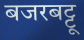
बजरबट्टू